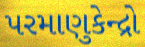
પરમાણુકેન્દ્રો